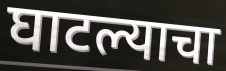
घाटल्याचा